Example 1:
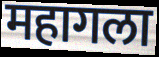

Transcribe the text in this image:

महागला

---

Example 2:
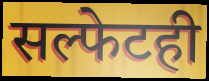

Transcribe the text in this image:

सल्फेटही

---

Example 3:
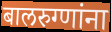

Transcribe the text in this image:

बालरुग्णांना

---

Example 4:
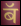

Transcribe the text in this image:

बॅ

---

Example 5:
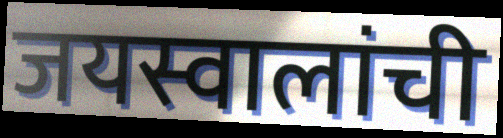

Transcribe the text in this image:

जयस्वालांची